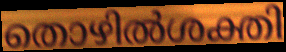
തൊഴിൽശക്തി